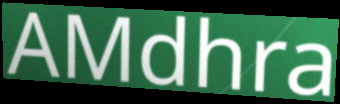
AMdhra